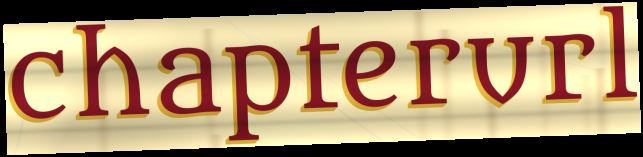
chapterurl